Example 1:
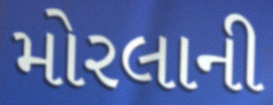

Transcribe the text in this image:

મોરલાની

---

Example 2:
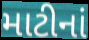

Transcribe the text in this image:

માટીનાં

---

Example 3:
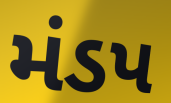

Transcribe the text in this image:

મંડપ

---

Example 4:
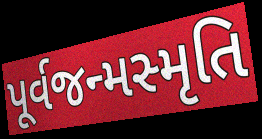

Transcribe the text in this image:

પૂર્વજન્મસ્મૃતિ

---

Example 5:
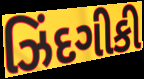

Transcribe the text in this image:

ઝિંદગીકી